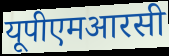
यूपीएमआरसी